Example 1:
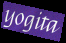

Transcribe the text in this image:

yogita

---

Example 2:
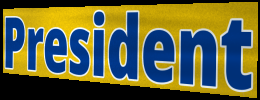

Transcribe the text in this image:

President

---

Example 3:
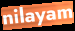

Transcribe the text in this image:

nilayam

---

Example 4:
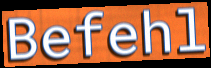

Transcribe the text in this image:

Befehl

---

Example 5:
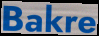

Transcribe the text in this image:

Bakre